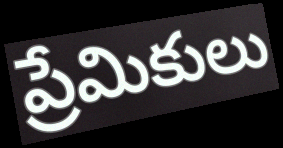
ప్రేమికులు